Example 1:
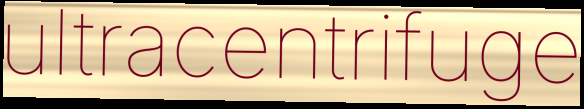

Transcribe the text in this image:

ultracentrifuge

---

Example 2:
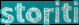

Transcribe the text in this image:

storiti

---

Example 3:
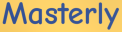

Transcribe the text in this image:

Masterly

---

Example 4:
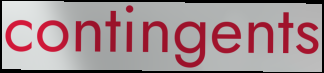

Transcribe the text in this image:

contingents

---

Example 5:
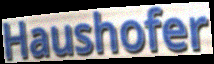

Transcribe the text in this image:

Haushofer